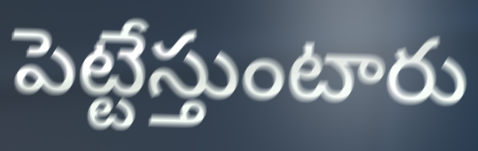
పెట్టేస్తుంటారు